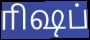
ரிஷப்